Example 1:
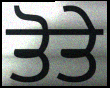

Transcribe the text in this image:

ਤੋਤੇ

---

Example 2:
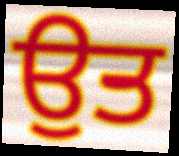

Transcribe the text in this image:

ਉਤ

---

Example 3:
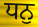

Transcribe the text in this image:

ਧਨੁ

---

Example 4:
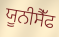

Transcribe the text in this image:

ਯੂਨੀਸੈੱਫ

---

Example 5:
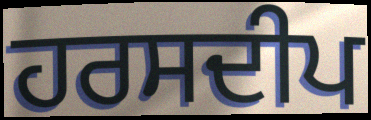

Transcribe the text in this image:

ਹਰਸਦੀਪ